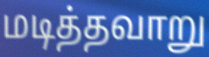
மடித்தவாறு